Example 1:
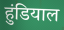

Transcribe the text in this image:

हुंडियाल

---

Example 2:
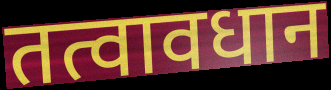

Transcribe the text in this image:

तत्वावधान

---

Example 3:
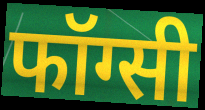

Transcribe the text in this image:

फॉग्सी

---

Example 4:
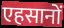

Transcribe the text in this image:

एहसानों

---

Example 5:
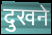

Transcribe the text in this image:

दुखने